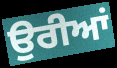
ਉਰੀਆਂ